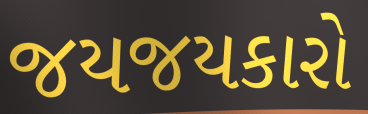
જયજયકારો